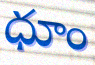
ధూం